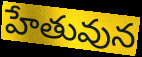
హేతువున